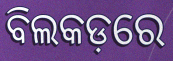
ବିଲକଡ଼ରେ